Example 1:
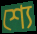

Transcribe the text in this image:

শ্যে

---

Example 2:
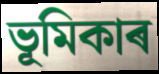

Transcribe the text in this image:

ভূমিকাৰ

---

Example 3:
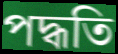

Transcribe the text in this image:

পদ্ধতি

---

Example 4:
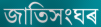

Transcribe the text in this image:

জাতিসংঘৰ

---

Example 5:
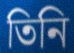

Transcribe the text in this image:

তিনি